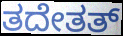
ತದೇತತ್